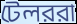
টেলররা